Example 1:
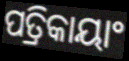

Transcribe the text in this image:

ପତ୍ରିକାୟାଂ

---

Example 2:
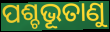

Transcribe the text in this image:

ପଶ୍ଚଭୂତାଣୁ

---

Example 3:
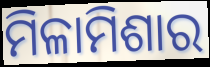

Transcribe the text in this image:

ମିଳାମିଶାର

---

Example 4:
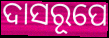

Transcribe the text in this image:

ଦାସରୂପେ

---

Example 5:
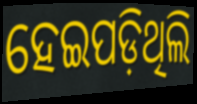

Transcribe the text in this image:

ହେଇପଡ଼ିଥିଲି